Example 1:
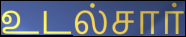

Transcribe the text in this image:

உடல்சார்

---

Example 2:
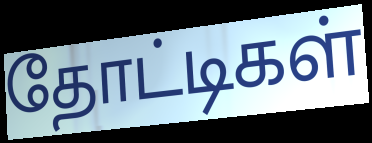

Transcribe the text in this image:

தோட்டிகள்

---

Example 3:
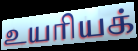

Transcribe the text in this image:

உயரியக்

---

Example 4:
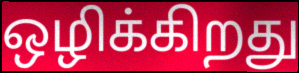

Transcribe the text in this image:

ஒழிக்கிறது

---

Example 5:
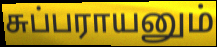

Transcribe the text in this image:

சுப்பராயனும்